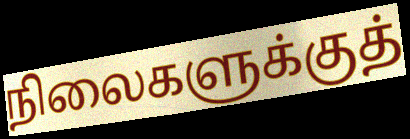
நிலைகளுக்குத்